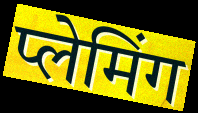
प्लेमिंग